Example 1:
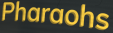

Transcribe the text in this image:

Pharaohs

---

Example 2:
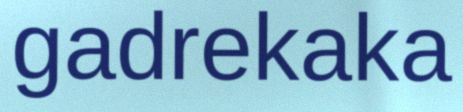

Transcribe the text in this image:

gadrekaka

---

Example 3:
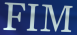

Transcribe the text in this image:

FIM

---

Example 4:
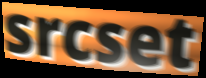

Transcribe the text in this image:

srcset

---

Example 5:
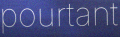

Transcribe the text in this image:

pourtant